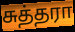
சுத்தரா